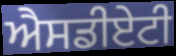
ਐਸਡੀਏਟੀ